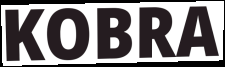
KOBRA